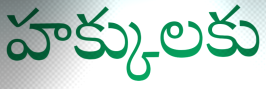
హక్కులకు